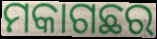
ମକାଗଛର